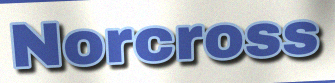
Norcross